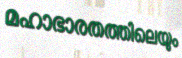
മഹാഭാരതത്തിലെയും